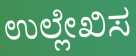
ಉಲ್ಲೇಖಿಸ